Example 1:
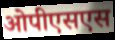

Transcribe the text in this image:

ओपीएसएस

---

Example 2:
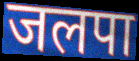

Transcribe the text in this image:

जलपा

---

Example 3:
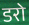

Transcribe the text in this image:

डरो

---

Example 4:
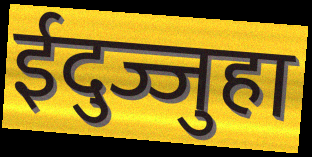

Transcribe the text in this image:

ईदुज्जुहा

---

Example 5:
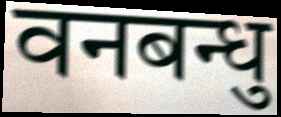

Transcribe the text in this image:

वनबन्धु